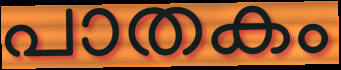
പാതകം